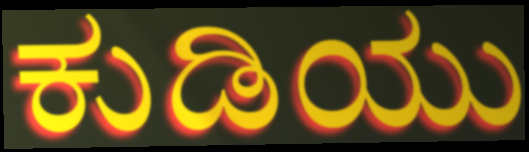
ಕುಡಿಯು